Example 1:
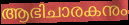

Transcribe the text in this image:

ആഭിചാരകനും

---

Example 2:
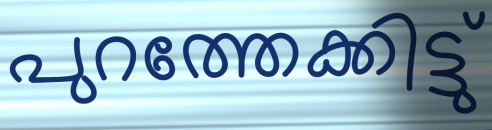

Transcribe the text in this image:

പുറത്തേക്കിട്ടു്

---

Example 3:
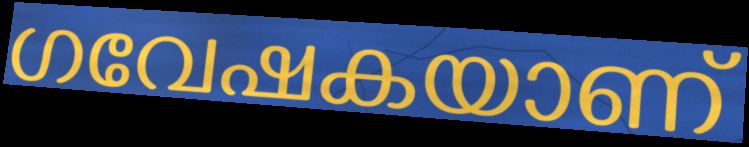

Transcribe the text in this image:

ഗവേഷകയാണ്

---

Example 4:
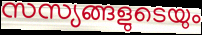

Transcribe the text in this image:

സസ്യങ്ങളുടെയും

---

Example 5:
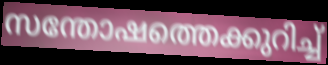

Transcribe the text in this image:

സന്തോഷത്തെക്കുറിച്ച്